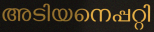
അടിയനെപ്പറ്റി